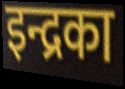
इन्द्रका